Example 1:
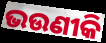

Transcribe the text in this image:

ଭଉଣୀକି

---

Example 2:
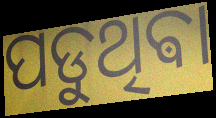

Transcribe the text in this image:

ପଡୁଥିଵା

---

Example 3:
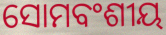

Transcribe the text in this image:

ସୋମବଂଶୀୟ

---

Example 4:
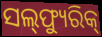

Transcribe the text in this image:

ସଲ୍‌ଫ୍ୟୁରିକ୍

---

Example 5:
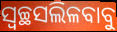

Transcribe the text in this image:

ସ୍ୱଚ୍ଛସଲିଳବାବୁ